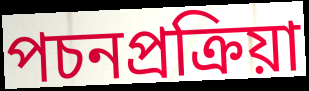
পচনপ্রক্রিয়া